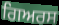
ਗਿਅਰਸ